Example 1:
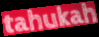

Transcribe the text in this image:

tahukah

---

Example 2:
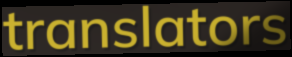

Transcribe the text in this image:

translators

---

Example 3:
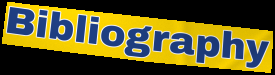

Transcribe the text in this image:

Bibliography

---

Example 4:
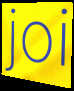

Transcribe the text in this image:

joi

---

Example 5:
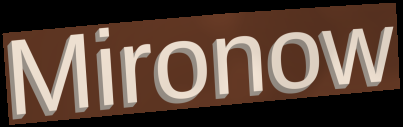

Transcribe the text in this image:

Mironow